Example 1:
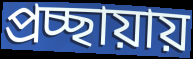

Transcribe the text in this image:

প্রচ্ছায়ায়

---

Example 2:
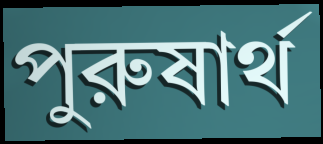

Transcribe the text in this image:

পুরুষার্থ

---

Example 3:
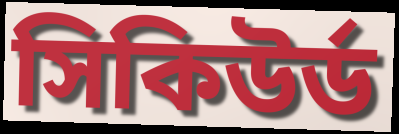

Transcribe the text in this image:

সিকিউর্ড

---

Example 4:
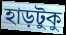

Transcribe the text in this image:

হাড়টুকু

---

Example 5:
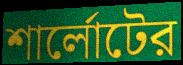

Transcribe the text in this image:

শার্লোটের